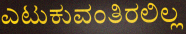
ಎಟುಕುವಂತಿರಲಿಲ್ಲ